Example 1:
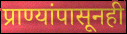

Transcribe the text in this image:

प्राण्यांपासूनही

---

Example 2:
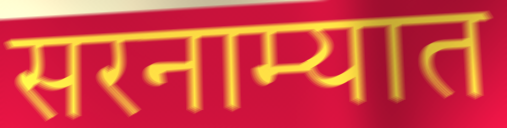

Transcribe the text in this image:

सरनाम्यात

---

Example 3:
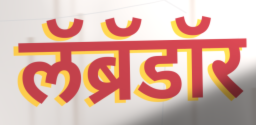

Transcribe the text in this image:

लॅब्रॅडॉर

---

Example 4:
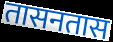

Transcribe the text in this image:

तासनतास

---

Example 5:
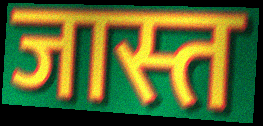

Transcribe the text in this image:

जास्त